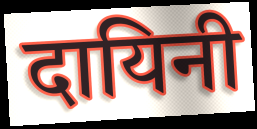
दायिनी